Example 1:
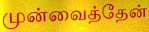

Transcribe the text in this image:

முன்வைத்தேன்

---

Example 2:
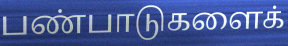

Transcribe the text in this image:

பண்பாடுகளைக்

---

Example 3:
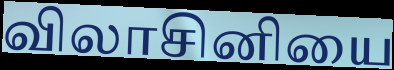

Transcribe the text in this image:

விலாசினியை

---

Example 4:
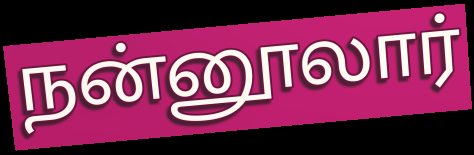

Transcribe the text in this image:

நன்னூலார்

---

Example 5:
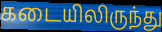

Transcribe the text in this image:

கடையிலிருந்து